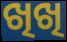
ଖିଖି